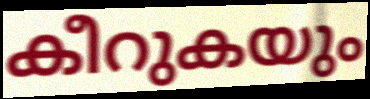
കീറുകയും